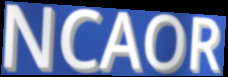
NCAOR